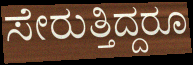
ಸೇರುತ್ತಿದ್ದರೂ